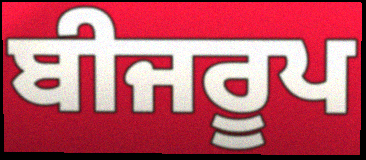
ਬੀਜਰੂਪ